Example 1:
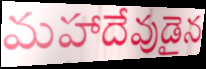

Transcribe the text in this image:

మహాదేవుడైన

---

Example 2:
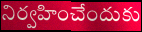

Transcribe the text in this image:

నిర్వహించేందుకు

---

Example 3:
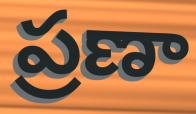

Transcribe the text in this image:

ప్రణా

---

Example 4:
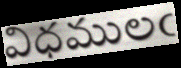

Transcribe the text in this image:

విధములఁ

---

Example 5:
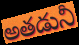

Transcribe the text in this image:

అతడునీ